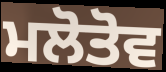
ਮਲੋਤੋਵ